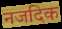
नजदिक